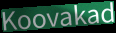
Koovakad